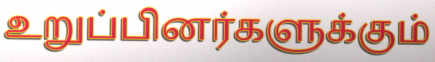
உறுப்பினர்களுக்கும்